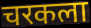
चरकला